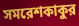
সমরেশকাকুর